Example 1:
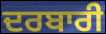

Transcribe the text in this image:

ਦਰਬਾਰੀ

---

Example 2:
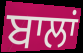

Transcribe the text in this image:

ਬਾਲਾਂ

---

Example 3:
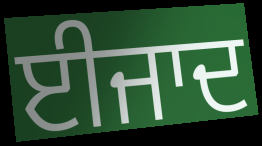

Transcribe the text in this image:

ਈਜਾਦ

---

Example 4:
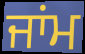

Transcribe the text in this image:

ਜਾਂਮ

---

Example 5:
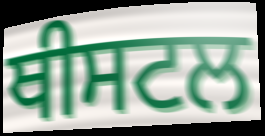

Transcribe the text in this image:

ਥੀਸਟਲ